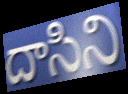
దాసిని